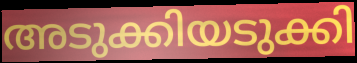
അടുക്കിയടുക്കി